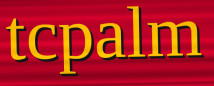
tcpalm